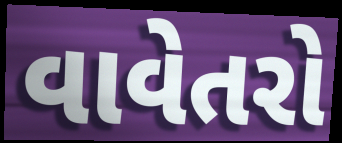
વાવેતરો